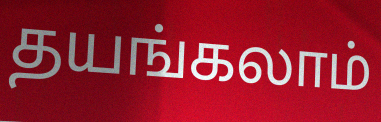
தயங்கலாம்